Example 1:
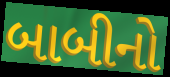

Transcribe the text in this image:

બાબીનો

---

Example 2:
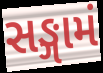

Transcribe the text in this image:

સઙ્ગામં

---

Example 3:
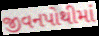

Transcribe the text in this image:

જીવનપોથીમાં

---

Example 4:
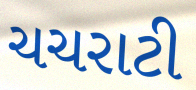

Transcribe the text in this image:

ચચરાટી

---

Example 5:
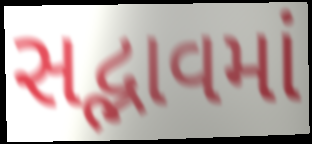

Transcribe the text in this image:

સદ્ભાવમાં